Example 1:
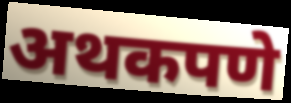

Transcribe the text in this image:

अथकपणे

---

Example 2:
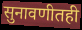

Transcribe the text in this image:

सुनावणीतही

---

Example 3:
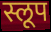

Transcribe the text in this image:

स्लूप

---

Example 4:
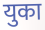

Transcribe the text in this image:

युका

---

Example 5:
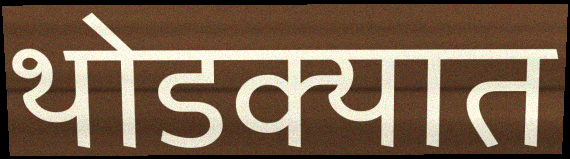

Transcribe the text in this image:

थोडक्यात